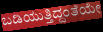
ಬಡಿಯುತ್ತಿದ್ದಂತೆಯೇ